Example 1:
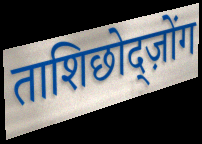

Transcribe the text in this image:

ताशिछोद्ज़ोंग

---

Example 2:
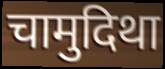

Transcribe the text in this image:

चामुदिथा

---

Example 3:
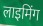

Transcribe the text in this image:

लाइमिंग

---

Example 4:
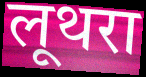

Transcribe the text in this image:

लूथरा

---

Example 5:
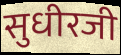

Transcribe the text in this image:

सुधीरजी